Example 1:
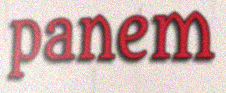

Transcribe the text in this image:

panem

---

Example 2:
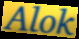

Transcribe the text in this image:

Alok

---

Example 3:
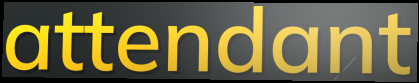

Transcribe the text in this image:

attendant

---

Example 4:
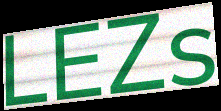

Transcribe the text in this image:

LEZs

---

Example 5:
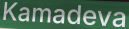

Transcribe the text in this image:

Kamadeva